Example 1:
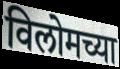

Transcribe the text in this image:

विलोमच्या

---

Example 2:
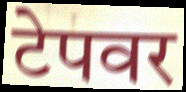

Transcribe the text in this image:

टेपवर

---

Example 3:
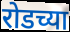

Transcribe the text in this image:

रोडच्या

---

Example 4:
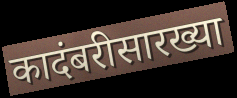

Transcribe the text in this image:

कादंबरीसारख्या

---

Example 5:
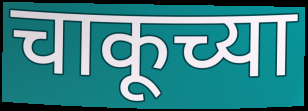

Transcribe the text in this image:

चाकूच्या